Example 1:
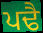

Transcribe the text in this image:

ਪਢੈ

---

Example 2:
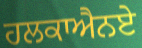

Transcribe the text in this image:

ਹਲਕਾਐਨਏ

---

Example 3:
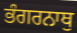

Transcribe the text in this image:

ਭੰਗਰਨਾਥੁ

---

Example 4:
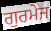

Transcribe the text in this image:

ਗੁਰਮੇਜ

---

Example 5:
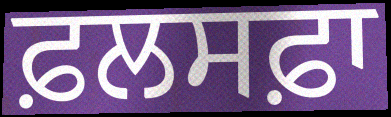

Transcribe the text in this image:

ਫ਼ਲਸਫ਼ਾ